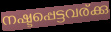
നഷ്ടപ്പെട്ടവര്ക്കു